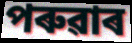
পৰুৱাৰ